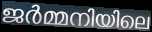
ജർമ്മനിയിലെ